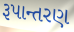
રૂપાન્તરણ